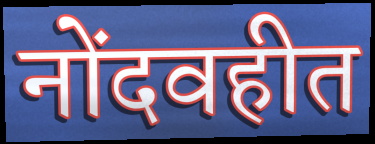
नोंदवहीत